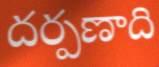
దర్పణాది